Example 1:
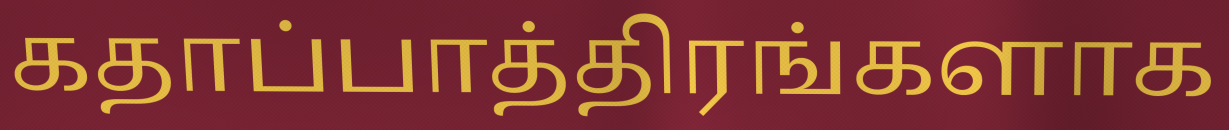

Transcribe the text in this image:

கதாப்பாத்திரங்களாக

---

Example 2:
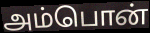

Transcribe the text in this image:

அம்பொன்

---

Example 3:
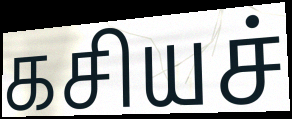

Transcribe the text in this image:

கசியச்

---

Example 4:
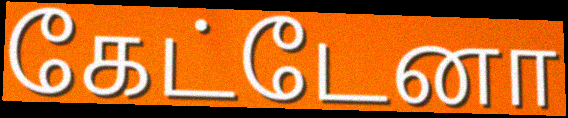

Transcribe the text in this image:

கேட்டேனா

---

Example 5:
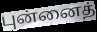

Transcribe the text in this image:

புன்னைத்